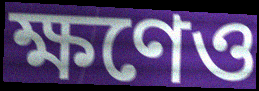
ক্ষণেও